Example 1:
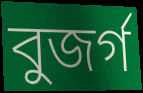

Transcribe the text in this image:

বুজর্গ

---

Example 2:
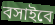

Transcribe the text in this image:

বসাইবে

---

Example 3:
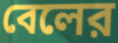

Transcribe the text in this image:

বেলের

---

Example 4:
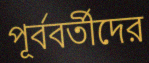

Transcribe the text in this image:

পূর্ববর্তীদের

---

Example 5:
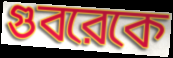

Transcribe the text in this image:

গুবরেকে